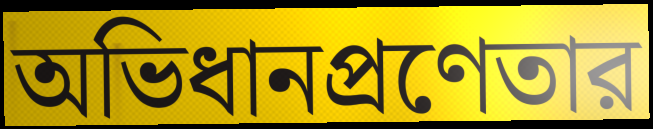
অভিধানপ্রণেতার